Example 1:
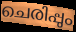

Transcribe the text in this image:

ചെരിപ്പും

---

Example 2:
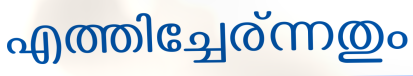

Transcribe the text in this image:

എത്തിച്ചേര്ന്നതും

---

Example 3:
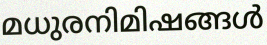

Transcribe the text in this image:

മധുരനിമിഷങ്ങൾ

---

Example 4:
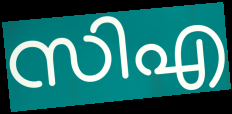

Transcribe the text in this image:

സിഎ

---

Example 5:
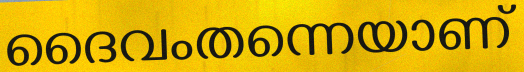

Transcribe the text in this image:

ദൈവംതന്നെയാണ്